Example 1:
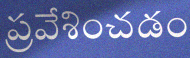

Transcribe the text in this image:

ప్రవేశించడం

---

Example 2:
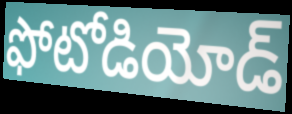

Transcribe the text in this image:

ఫోటోడియోడ్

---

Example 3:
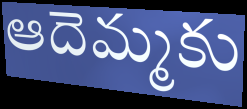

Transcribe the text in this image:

ఆదెమ్మకు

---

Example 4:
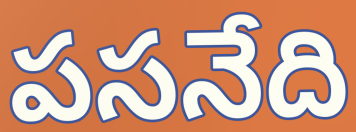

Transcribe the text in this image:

పసనేది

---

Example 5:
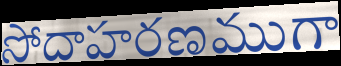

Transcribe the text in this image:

సోదాహరణముగా